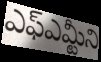
ఎఫ్ఎమ్టీని